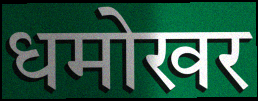
धमोखर